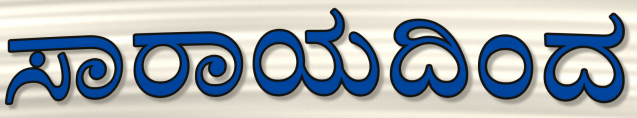
ಸಾರಾಯದಿಂದ